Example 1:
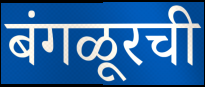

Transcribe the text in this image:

बंगळूरची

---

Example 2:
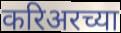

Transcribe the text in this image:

करिअरच्या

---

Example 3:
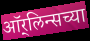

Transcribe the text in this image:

ऑर्लिन्सच्या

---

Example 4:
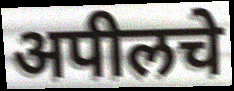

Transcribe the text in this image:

अपीलचे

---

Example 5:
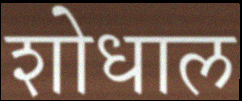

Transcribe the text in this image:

शोधाल